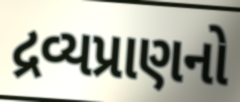
દ્રવ્યપ્રાણનો